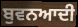
ਬੁਵਨਆਦੀ